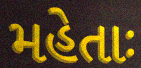
મહેતાઃ